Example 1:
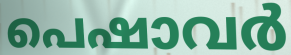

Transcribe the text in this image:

പെഷാവർ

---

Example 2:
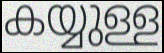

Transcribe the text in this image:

കയ്യുള്ള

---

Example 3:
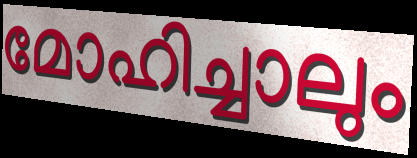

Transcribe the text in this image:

മോഹിച്ചാലും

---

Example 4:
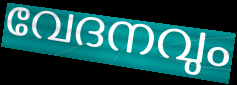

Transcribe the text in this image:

വേദനവും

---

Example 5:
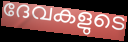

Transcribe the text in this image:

ദേവകളുടെ